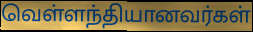
வெள்ளந்தியானவர்கள்